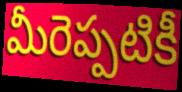
మీరెప్పటికీ